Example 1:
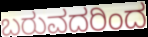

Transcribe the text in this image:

ಬರುವದರಿಂದ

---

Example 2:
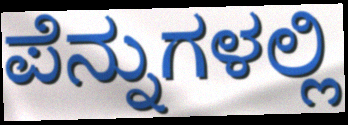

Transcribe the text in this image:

ಪೆನ್ನುಗಳಲ್ಲಿ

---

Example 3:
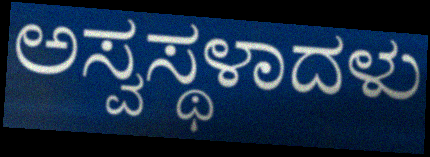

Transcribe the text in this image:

ಅಸ್ವಸ್ಥಳಾದಳು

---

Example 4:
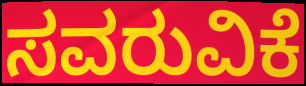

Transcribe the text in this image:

ಸವರುವಿಕೆ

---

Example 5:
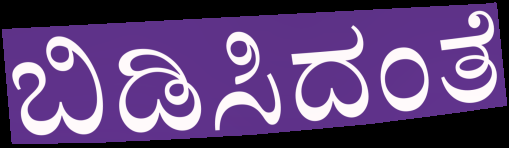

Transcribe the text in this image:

ಬಿಡಿಸಿದಂತೆ